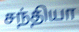
சந்தியா